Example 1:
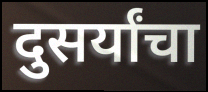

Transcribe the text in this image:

दुसर्यांचा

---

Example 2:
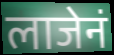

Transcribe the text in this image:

लाजेनं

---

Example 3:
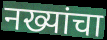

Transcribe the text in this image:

नख्यांचा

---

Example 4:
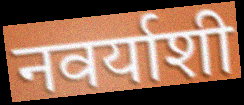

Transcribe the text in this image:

नवर्याशी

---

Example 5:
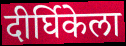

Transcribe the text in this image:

दीर्घिकेला